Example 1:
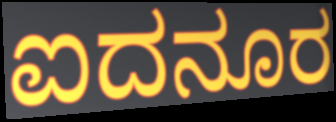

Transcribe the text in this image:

ಐದನೂರ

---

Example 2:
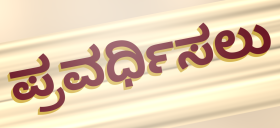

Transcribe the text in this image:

ಪ್ರವರ್ಧಿಸಲು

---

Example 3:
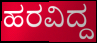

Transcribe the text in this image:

ಹರವಿದ್ದ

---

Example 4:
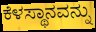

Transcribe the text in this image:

ಕೆಳಸ್ಥಾನವನ್ನು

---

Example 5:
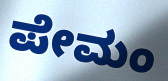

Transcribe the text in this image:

ಪೇಮಂ